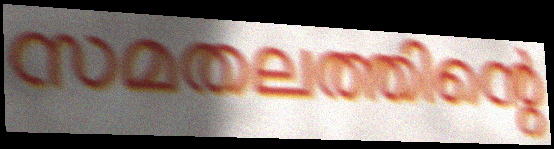
സമതലത്തിന്റെ